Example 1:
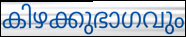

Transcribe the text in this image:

കിഴക്കുഭാഗവും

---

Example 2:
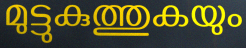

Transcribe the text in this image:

മുട്ടുകുത്തുകയും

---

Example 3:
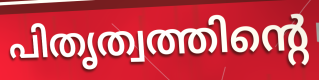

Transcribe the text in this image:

പിതൃത്വത്തിന്റെ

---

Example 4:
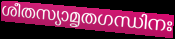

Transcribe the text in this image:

ശീതസ്യാമൃതഗന്ധിനഃ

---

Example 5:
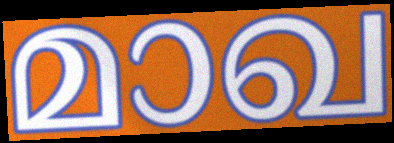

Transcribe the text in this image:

മാഖ